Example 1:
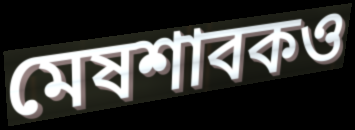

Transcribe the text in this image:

মেষশাবকও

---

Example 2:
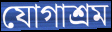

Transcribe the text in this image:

যোগাশ্রম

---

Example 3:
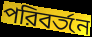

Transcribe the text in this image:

পরিবর্তনে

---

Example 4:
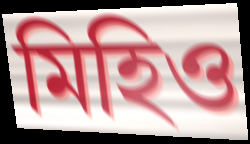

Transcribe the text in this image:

মিহিও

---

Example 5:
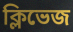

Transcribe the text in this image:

ক্লিভেজ